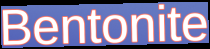
Bentonite